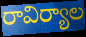
రావిర్యాల